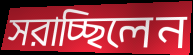
সরাচ্ছিলেন